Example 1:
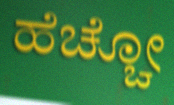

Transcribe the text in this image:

ಹೆಚ್ಚೋ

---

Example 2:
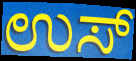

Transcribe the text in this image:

ಉಸ್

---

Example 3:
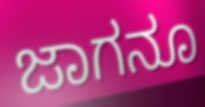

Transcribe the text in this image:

ಜಾಗನೂ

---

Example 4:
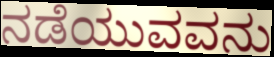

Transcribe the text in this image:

ನಡೆಯುವವನು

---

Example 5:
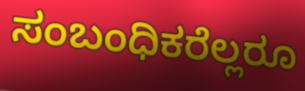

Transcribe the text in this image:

ಸಂಬಂಧಿಕರೆಲ್ಲರೂ